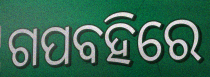
ଗପବହିରେ